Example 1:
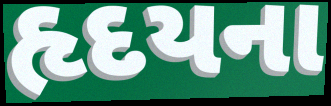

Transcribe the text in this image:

હૃદયના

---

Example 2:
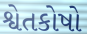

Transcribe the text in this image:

શ્વેતકોષો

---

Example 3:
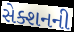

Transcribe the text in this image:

સેક્શનની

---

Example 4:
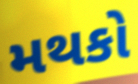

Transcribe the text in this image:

મથકો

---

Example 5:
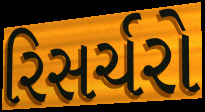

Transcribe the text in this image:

રિસર્ચરો